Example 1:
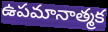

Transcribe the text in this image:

ఉపమానాత్మక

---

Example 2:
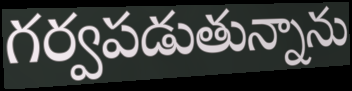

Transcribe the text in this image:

గర్వపడుతున్నాను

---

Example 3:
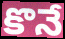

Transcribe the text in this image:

కొనే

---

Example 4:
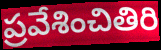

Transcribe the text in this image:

ప్రవేశించితిరి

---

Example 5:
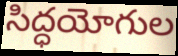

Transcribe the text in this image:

సిద్ధయోగుల